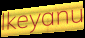
Ikeyanu